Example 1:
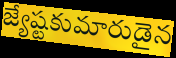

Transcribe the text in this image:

జ్యేష్టకుమారుడైన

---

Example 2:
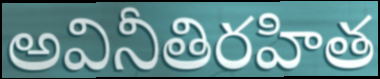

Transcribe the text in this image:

అవినీతిరహిత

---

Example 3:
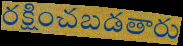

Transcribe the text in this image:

రక్షించబడతారు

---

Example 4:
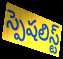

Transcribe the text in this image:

స్పెషలిస్ట్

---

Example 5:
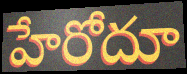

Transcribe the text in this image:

హేరోదూ